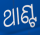
ଥାଣ୍ଟ